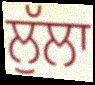
ਲੁੱਲਾ